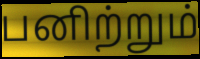
பனிற்றும்